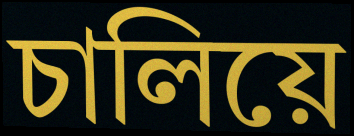
চালিয়ে